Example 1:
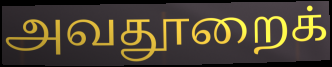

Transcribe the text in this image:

அவதூறைக்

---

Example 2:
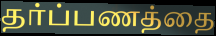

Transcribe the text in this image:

தர்ப்பணத்தை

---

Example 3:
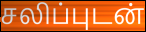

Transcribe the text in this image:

சலிப்புடன்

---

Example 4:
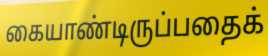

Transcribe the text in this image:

கையாண்டிருப்பதைக்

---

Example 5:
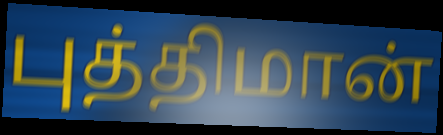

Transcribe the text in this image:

புத்திமான்